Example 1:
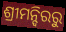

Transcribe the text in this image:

ଶ୍ରୀମନ୍ଦିରରୁ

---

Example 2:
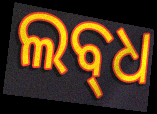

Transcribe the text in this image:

ଲବ୍‍ଧ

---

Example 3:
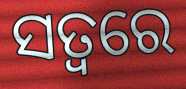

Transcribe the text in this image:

ସତ୍ଵରେ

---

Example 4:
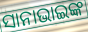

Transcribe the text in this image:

ସାନାଭାଇଙ୍କ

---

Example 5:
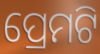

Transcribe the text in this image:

ପ୍ରେମଟି